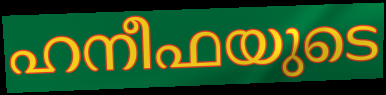
ഹനീഫയുടെ